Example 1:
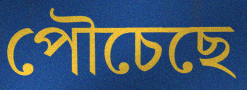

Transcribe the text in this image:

পৌচেছে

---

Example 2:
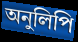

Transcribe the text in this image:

অনুলিপি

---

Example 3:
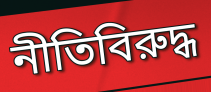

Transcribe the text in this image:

নীতিবিরুদ্ধ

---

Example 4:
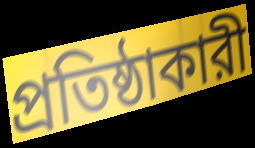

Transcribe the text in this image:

প্রতিষ্ঠাকারী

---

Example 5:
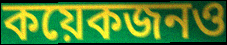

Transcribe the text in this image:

কয়েকজনও